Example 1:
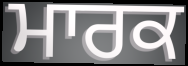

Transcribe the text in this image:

ਮਾਰਕ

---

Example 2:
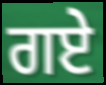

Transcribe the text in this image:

ਗਏ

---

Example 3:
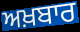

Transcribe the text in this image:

ਅਖ਼ਬਾਰ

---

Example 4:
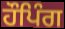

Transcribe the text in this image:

ਹੌਪਿੰਗ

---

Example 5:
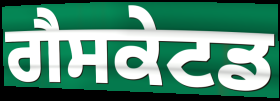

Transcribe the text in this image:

ਗੈਸਕੇਟਡ